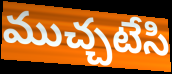
ముచ్చటేసి